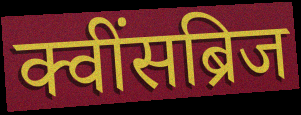
क्वींसब्रिज